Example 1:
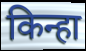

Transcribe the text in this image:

किन्हा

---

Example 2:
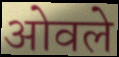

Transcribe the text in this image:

ओवले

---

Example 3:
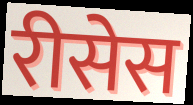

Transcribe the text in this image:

रीसेस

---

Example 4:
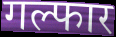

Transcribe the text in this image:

गल्फार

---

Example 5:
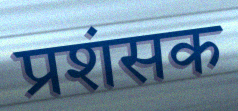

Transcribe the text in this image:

प्रशंसक